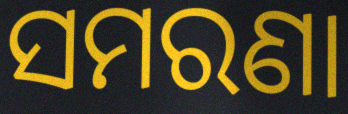
ସମରଣା